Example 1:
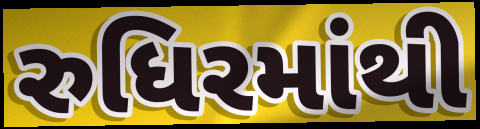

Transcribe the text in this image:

રુધિરમાંથી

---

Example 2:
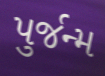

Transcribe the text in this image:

પુર્જન્મ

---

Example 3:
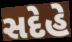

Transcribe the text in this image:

સદેહે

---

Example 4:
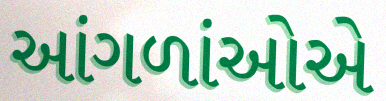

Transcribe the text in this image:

આંગળાંઓએ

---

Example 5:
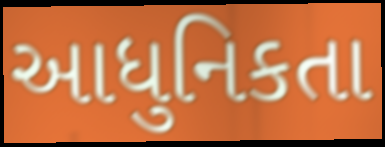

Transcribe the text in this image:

આધુનિકતા